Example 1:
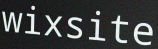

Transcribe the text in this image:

wixsite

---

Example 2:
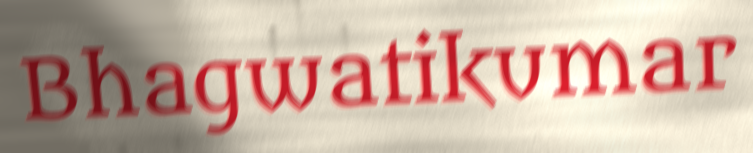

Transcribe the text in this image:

Bhagwatikumar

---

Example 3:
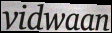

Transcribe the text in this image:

vidwaan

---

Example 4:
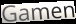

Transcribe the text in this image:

Gamen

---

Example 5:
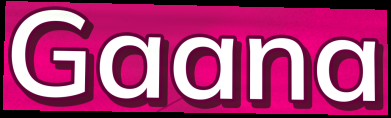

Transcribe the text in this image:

Gaana